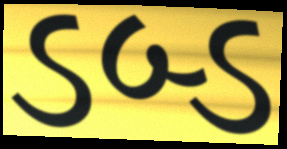
ડબ્ડ